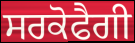
ਸਰਕੋਫੈਗੀ